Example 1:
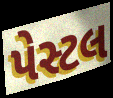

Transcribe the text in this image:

પેસ્ટલ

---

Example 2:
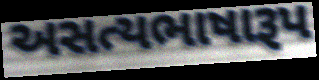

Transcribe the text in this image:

અસત્યભાષારૂપ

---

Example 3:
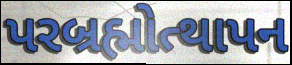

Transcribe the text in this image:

પરબ્રહ્મોત્થાપન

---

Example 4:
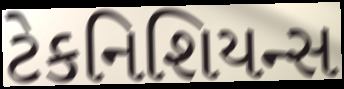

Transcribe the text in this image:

ટેકનિશિયન્સ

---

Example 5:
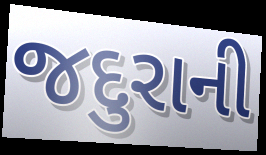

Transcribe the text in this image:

જદુરાની